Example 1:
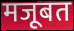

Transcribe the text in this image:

मजूबत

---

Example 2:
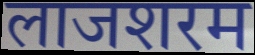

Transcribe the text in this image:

लाजशरम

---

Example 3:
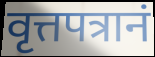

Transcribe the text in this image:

वृत्तपत्रानं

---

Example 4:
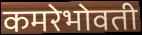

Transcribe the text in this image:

कमरेभोवती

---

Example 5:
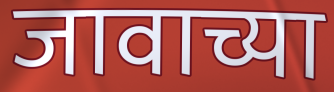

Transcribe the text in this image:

जावाच्या